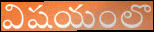
విషయంలొ